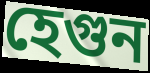
হেগুন